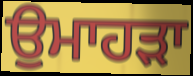
ਉਮਾਹੜਾ